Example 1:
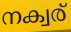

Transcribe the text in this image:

നക്വര്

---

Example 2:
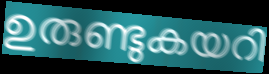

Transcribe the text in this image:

ഉരുണ്ടുകയറി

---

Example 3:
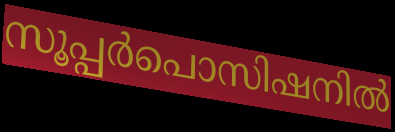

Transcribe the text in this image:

സൂപ്പർപൊസിഷനിൽ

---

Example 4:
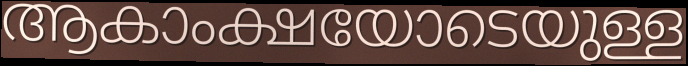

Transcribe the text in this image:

ആകാംക്ഷയോടെയുള്ള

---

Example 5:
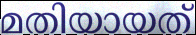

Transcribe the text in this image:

മതിയായത്